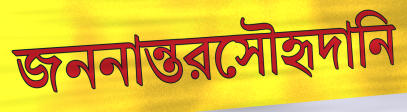
জননান্তরসৌহৃদানি